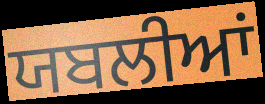
ਯਬਲੀਆਂ